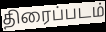
திரைப்படம்